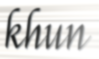
khun